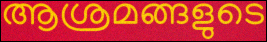
ആശ്രമങ്ങളുടെ